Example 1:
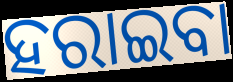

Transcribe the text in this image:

ହରାଇବା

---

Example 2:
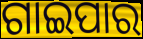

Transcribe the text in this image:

ଗାଇପାର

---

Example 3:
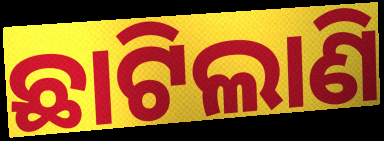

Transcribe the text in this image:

ଛାଟିଲାଣି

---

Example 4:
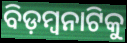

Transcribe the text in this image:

ବିଡ଼ମ୍ବନାଟିକୁ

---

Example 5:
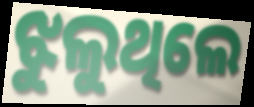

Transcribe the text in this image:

ଝୁଲୁଥିଲେ